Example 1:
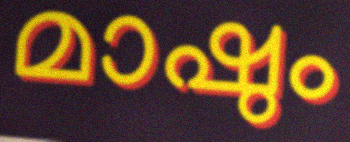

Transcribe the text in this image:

മാഷും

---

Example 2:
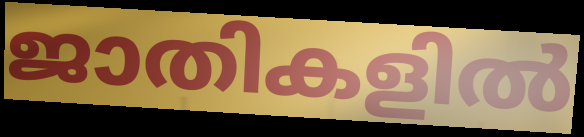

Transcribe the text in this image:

ജാതികളിൽ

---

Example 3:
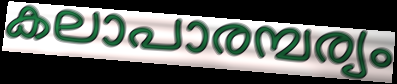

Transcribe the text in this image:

കലാപാരമ്പര്യം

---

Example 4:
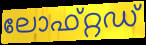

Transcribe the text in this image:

ലോഫ്റ്റഡ്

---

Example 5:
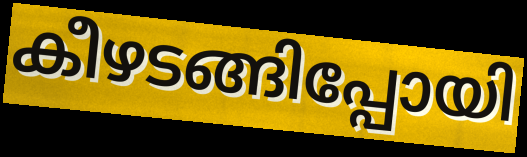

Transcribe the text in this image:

കീഴടങ്ങിപ്പോയി